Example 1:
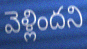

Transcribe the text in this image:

వెళ్లిందని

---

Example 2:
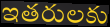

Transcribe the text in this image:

ఇతరులకు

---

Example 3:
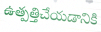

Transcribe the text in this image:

ఉత్పత్తిచేయడానికి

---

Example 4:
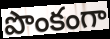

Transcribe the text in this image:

పొంకంగా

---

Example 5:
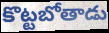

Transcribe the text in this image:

కొట్టబోతాడు